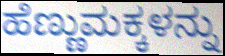
ಹೆಣ್ಣುಮಕ್ಕಳನ್ನು